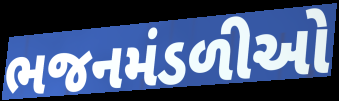
ભજનમંડળીઓ